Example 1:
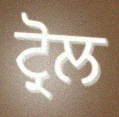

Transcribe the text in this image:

ਟ੍ਰੋਲ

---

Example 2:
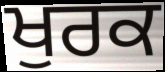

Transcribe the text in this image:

ਖੁਰਕ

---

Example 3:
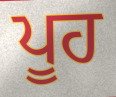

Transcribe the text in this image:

ਪੂਹ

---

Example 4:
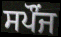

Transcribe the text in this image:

ਸਪੌਂਜ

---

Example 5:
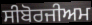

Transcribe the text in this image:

ਸੀਬੋਰਜੀਅਮ